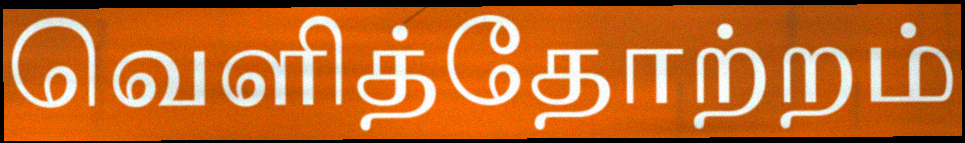
வெளித்தோற்றம்